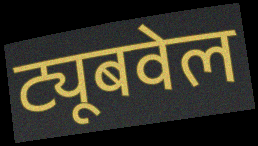
ट्यूबवेल